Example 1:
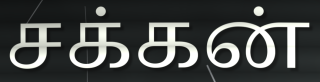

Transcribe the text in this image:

சக்கன்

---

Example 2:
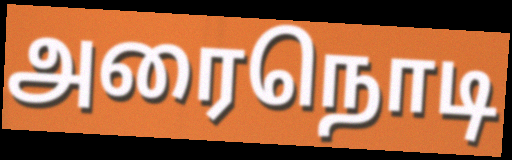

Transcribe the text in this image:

அரைநொடி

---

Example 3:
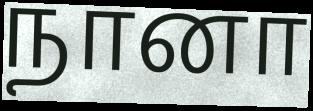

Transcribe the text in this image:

நானா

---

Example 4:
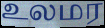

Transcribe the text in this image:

உலமர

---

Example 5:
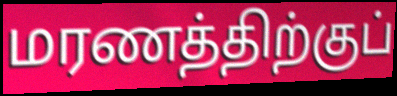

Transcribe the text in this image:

மரணத்திற்குப்